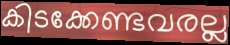
കിടക്കേണ്ടവരല്ല